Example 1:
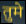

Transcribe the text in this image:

तुमे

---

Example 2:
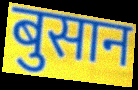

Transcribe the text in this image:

बुसान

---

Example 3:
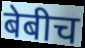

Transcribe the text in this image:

बेबीच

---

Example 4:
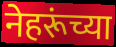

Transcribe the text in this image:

नेहरूंच्या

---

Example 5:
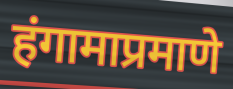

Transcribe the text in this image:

हंगामाप्रमाणे